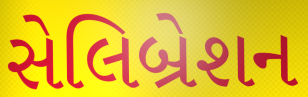
સેલિબ્રેશન